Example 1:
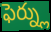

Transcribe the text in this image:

ఫెర్న్లు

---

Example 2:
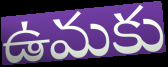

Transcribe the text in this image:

ఉమకు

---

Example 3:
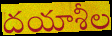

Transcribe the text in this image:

దయాశీల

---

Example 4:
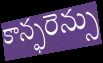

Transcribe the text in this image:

కాన్ఫరెన్సు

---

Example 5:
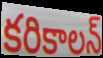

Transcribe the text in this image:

కరికాలన్